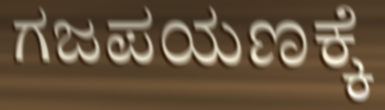
ಗಜಪಯಣಕ್ಕೆ